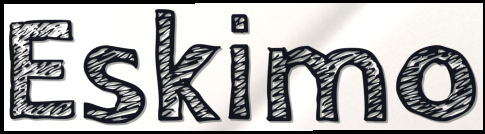
Eskimo